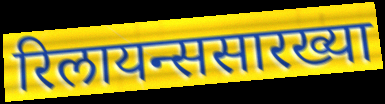
रिलायन्ससारख्या